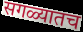
सगळ्यातच